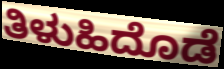
ತಿಳುಹಿದೊಡೆ